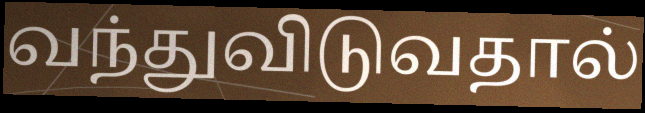
வந்துவிடுவதால்